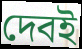
দেবই